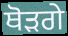
ਥੋੜਗੇ